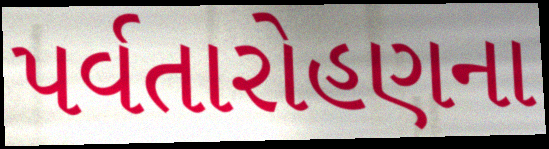
પર્વતારોહણના